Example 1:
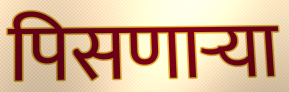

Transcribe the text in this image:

पिसणाऱ्या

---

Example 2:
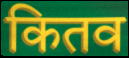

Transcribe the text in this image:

कितव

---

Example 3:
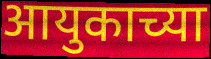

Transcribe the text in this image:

आयुकाच्या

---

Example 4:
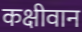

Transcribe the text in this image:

कक्षीवान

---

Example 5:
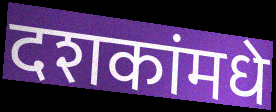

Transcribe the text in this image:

दशकांमधे